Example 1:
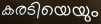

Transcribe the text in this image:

കരടിയെയും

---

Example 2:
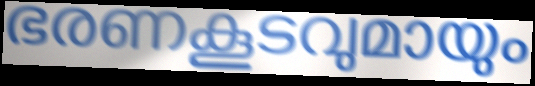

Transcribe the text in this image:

ഭരണകൂടവുമായും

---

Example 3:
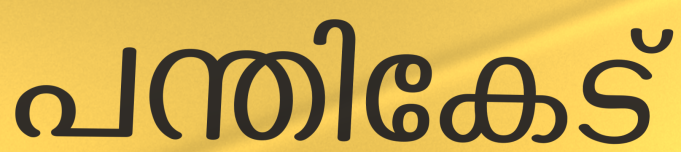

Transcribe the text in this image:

പന്തികേട്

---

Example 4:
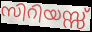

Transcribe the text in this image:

സിറിയസ്സ്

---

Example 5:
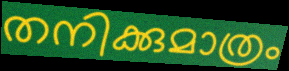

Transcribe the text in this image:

തനിക്കുമാത്രം